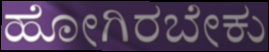
ಹೋಗಿರಬೇಕು